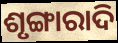
ଶୃଙ୍ଗାରାଦି